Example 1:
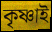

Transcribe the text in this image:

কৃষ্ণাই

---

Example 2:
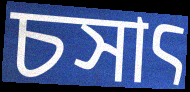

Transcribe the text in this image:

চসাৎ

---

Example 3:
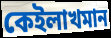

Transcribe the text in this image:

কেইলাখমান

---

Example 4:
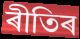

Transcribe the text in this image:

ৰীতিৰ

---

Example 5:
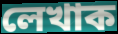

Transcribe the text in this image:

লেখাক